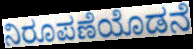
ನಿರೂಪಣೆಯೊಡನೆ